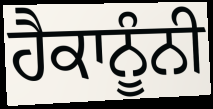
ਹੈਕਾਨੂੰਨੀ